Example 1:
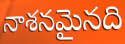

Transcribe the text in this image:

నాశనమైనది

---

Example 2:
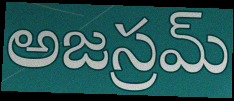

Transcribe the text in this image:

అజస్రమ్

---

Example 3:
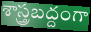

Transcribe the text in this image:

శాస్త్రబద్దంగా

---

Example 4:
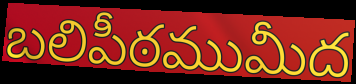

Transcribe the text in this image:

బలిపీఠముమీద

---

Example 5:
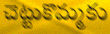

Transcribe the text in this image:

చెట్టుకొమ్మకు